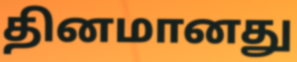
தினமானது